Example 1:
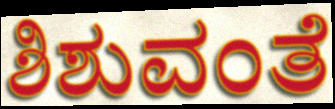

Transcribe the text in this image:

ಶಿಶುವಂತೆ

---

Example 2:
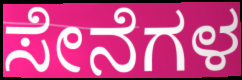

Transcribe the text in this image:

ಸೇನೆಗಳ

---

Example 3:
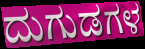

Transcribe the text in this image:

ದುಗುಡಗಳ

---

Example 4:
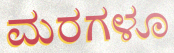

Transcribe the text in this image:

ಮರಗಳೂ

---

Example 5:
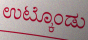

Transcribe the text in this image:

ಉಟ್ಕೊಂಡು